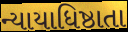
ન્યાયાધિષ્ઠાતા